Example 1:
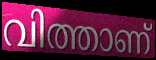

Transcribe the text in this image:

വിത്താണ്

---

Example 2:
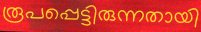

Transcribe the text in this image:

രൂപപ്പെട്ടിരുന്നതായി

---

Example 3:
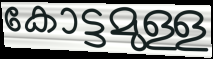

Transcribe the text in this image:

കോട്ടമുള്ള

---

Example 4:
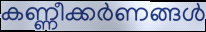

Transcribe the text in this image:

കണ്ണീക്കർണങ്ങൾ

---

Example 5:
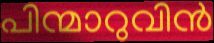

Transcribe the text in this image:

പിന്മാറുവിൻ